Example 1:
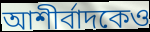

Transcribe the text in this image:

আশীর্বাদকেও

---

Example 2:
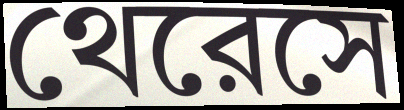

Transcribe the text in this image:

থেরেসে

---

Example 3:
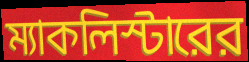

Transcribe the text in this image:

ম্যাকলিস্টারের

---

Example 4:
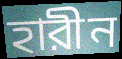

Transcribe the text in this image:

হারীন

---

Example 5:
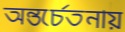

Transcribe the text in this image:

অন্তর্চেতনায়